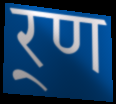
र्ण